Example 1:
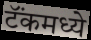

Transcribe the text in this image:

टॅंकमध्ये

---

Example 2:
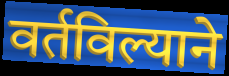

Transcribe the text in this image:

वर्तविल्याने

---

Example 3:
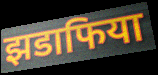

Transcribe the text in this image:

झडाफिया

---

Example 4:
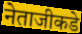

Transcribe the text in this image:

नेताजीकडे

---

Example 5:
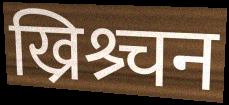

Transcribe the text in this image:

ख्रिश्र्चन